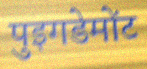
पुइगडेमोंट